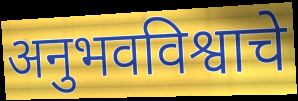
अनुभवविश्वाचे